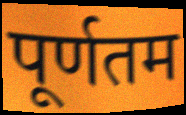
पूर्णतम